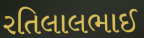
રતિલાલભાઈ